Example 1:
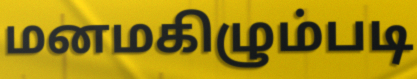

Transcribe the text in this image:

மனமகிழும்படி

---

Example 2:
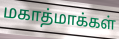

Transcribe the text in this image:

மகாத்மாக்கள்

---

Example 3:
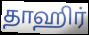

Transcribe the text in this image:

தாஹிர்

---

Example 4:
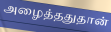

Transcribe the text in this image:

அழைத்ததுதான்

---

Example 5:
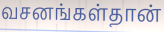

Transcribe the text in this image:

வசனங்கள்தான்